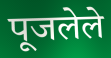
पूजलेले